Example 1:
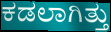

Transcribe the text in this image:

ಕಡಲಾಗಿತ್ತು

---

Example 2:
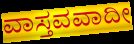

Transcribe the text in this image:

ವಾಸ್ತವವಾದೀ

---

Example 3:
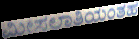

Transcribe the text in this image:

ಮೀಸಲಾತಿಯಂತಹ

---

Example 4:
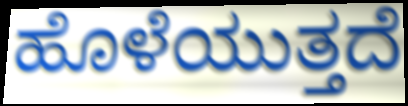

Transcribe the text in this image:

ಹೊಳೆಯುತ್ತದೆ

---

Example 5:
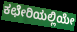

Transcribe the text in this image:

ಕಛೇರಿಯಲ್ಲಿಯೇ